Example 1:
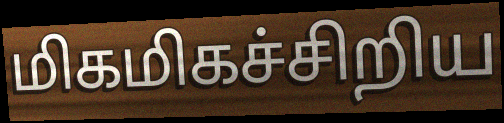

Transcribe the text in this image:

மிகமிகச்சிறிய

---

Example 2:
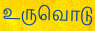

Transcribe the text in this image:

உருவொடு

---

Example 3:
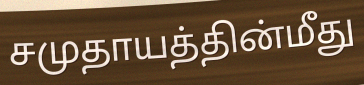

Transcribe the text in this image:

சமுதாயத்தின்மீது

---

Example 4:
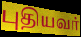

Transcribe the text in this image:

புதியவர்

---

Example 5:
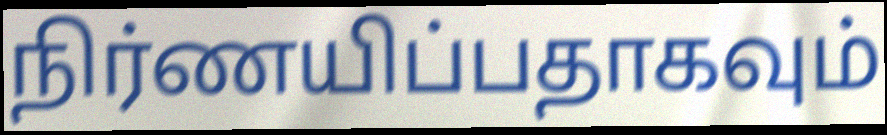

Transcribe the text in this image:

நிர்ணயிப்பதாகவும்